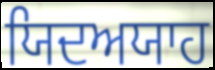
ਯਿਦਅਯਾਹ